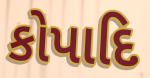
કોપાદિ